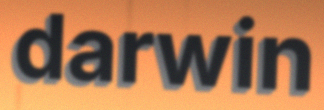
darwin